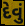
દેવું